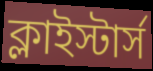
ক্লাইস্টার্স